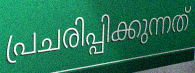
പ്രചരിപ്പിക്കുന്നത്